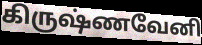
கிருஷ்ணவேனி